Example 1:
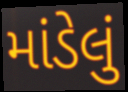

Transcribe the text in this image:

માંડેલું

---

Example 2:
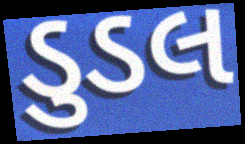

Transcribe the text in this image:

ડુડલ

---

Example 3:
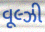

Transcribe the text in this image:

વૂલ્ઝી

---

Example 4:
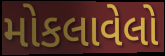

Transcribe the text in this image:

મોકલાવેલો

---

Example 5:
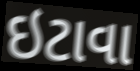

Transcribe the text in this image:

ઇટાવા